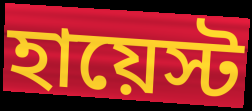
হায়েস্ট